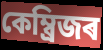
কেম্ব্ৰিজৰ